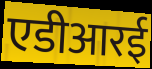
एडीआरई